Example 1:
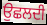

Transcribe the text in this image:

ਉਛਲਦੀ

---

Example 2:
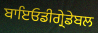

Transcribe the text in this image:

ਬਾਇਓਡੀਗ੍ਰੇਡੇਬਲ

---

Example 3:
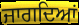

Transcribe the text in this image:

ਜਾਗਦਿਆਂ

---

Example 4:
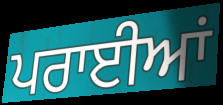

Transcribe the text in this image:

ਪਰਾਈਆਂ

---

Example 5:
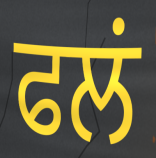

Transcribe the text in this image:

ਫਲਂ